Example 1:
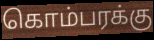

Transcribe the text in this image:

கொம்பரக்கு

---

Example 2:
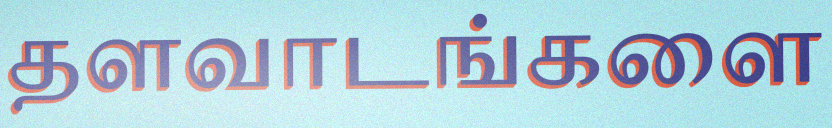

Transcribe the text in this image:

தளவாடங்களை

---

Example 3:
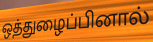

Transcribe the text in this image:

ஒத்துழைப்பினால்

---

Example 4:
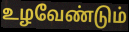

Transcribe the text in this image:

உழவேண்டும்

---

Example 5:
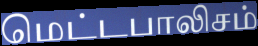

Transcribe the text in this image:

மெட்டபாலிசம்